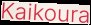
Kaikoura